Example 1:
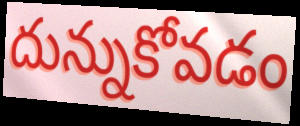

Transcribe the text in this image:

దున్నుకోవడం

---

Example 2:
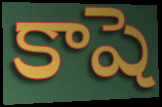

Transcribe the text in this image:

కాషె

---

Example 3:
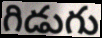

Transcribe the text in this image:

గిడుగు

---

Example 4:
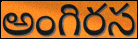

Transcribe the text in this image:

అంగిరస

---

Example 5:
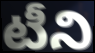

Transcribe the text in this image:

టీని